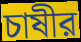
চাষীর